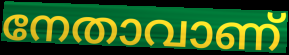
നേതാവാണ്